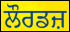
ਲੌਰਡਜ਼